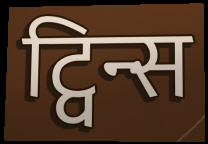
ट्विन्स